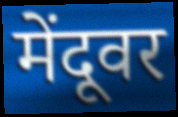
मेंदूवर